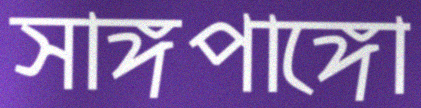
সাঙ্গপাঙ্গো